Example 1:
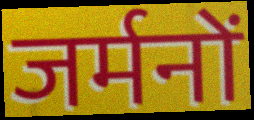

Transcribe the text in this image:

जर्मनों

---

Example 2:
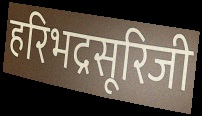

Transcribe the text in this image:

हरिभद्रसूरिजी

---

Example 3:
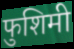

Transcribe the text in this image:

फुशिमी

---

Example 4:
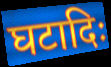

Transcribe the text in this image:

घटादिः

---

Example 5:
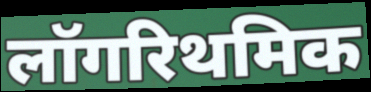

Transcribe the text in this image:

लॉगरिथमिक